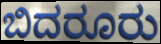
ಬಿದರೂರು